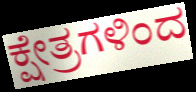
ಕ್ಷೇತ್ರಗಳಿಂದ